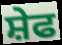
ਸ਼ੇਫ